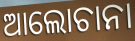
ଆଲୋଚାନା